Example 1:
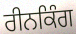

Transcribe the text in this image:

ਰੀਨਕਿੰਗ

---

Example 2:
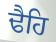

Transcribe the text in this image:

ਢੈਹਿ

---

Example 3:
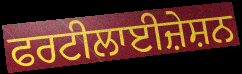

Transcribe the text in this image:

ਫਰਟੀਲਾਈਜ਼ੇਸ਼ਨ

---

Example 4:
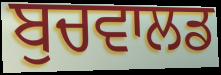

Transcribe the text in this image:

ਬੁਚਵਾਲਡ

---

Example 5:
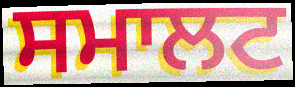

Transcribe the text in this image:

ਸਮਾਲਟ